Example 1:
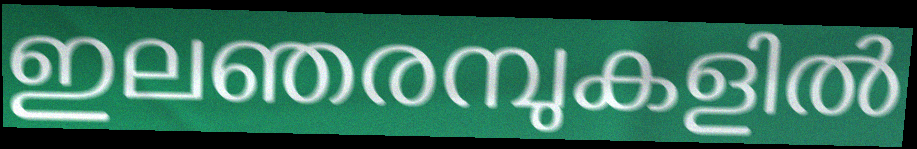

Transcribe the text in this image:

ഇലഞരമ്പുകളിൽ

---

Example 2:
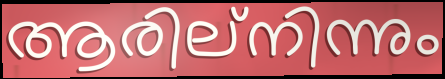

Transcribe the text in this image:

ആരില്നിന്നും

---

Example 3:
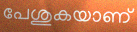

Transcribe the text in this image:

പേശുകയാണ്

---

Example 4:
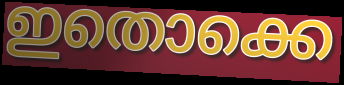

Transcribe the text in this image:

ഇതൊക്കെ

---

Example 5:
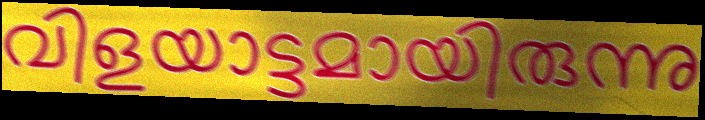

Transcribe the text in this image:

വിളയാട്ടമായിരുന്നു